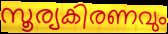
സൂര്യകിരണവും